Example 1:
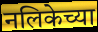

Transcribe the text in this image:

नलिकेच्या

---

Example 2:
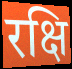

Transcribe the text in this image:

रक्षि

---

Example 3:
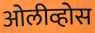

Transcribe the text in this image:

ओलीव्होस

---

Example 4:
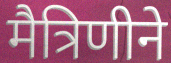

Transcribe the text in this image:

मैत्रिणीने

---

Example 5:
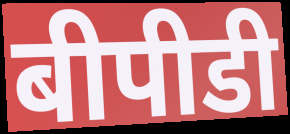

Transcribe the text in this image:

बीपीडी